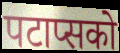
पटाप्सको